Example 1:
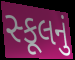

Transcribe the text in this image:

સ્કૂલનું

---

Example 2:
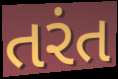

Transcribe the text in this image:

તરંત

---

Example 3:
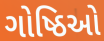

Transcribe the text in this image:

ગોષ્ઠિઓ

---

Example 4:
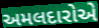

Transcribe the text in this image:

અમલદારોએ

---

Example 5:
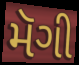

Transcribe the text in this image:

મૅગી